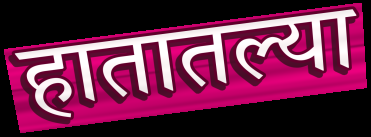
हातातल्या